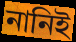
নানিই